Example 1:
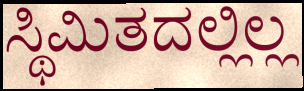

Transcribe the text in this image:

ಸ್ಥಿಮಿತದಲ್ಲಿಲ್ಲ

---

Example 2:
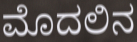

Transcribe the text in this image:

ಮೊದಲಿನ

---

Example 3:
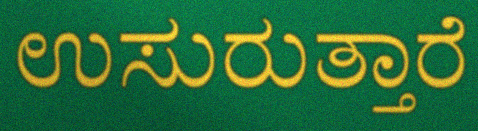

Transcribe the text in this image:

ಉಸುರುತ್ತಾರೆ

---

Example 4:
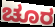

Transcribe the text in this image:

ಚೂರ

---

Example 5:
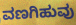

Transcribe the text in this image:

ವಣಗಿಹುವು